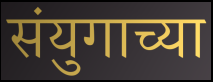
संयुगाच्या